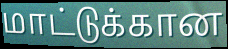
மாட்டுக்கான